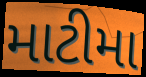
માટીમા